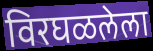
विरघळलेला